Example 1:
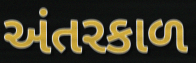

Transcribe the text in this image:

અંતરકાળ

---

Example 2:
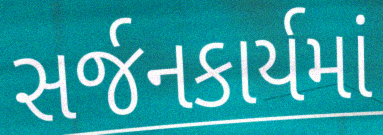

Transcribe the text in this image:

સર્જનકાર્યમાં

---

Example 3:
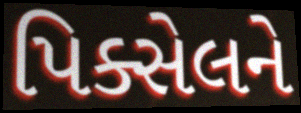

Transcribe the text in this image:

પિક્સેલને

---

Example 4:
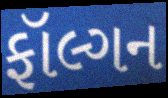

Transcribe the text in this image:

ફૉલ્ગન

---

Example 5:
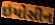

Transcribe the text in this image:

ઇયોસીન